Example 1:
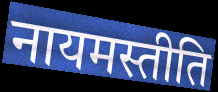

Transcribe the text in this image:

नायमस्तीति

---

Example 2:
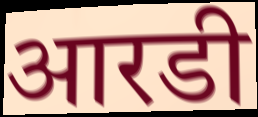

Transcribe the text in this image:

आरडी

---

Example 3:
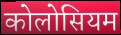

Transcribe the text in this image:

कोलोसियम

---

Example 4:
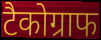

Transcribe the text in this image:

टैकोग्राफ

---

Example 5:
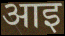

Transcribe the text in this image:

आइ